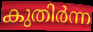
കുതിർന്ന